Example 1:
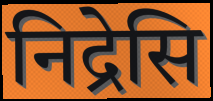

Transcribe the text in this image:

निद्रेसि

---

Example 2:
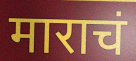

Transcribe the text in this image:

माराचं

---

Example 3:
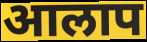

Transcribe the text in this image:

आलाप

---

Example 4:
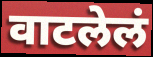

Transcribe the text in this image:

वाटलेलं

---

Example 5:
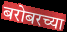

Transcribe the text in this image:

बरोबरच्या